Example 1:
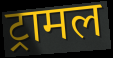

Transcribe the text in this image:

ट्रामल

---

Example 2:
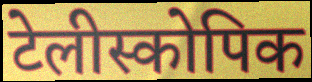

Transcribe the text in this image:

टेलीस्कोपिक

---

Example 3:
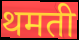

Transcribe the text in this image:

थमती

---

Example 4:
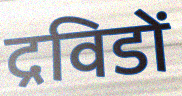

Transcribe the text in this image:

द्रविडों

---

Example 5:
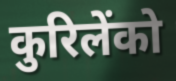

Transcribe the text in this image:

कुरिलेंको